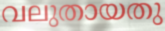
വലുതായതു